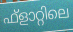
ഫ്ളാറ്റിലെ